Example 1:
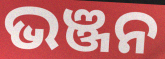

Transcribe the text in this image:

ଭଞ୍ଜନ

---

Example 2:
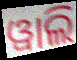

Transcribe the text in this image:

ୱାଲି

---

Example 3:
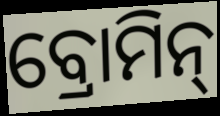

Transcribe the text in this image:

ବ୍ରୋମିନ୍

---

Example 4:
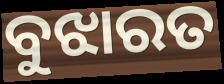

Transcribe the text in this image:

ବୁଝାରତ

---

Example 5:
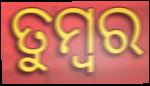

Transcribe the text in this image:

ତୁମ୍ବର